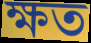
ক্ষত